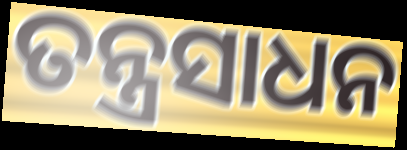
ତନ୍ତ୍ରସାଧନ